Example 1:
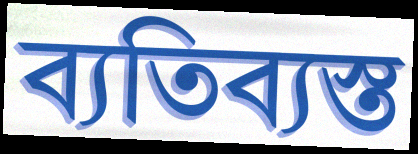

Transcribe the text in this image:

ব্যতিব্যস্ত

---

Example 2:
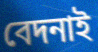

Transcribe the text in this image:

বেদনাই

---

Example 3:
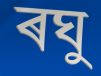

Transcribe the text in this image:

ৰঘু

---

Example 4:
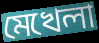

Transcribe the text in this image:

মেখেলা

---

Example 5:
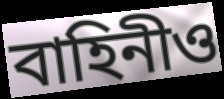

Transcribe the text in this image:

বাহিনীও